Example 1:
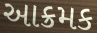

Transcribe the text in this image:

આક્રમક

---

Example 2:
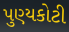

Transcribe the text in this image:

પુણ્યકોટી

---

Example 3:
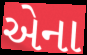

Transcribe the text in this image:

એના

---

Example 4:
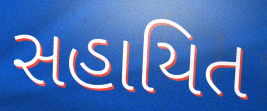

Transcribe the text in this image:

સહાયિત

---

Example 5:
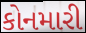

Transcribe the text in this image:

કોનમારી